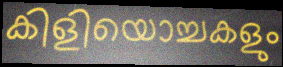
കിളിയൊച്ചകളും